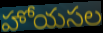
హోయసల